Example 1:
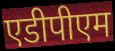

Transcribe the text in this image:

एडीपीएम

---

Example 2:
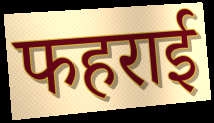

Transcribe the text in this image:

फहराई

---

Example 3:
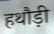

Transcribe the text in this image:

हथौड़ी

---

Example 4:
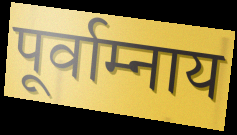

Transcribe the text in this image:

पूर्वाम्नाय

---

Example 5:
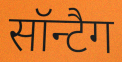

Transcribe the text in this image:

सॉन्टैग